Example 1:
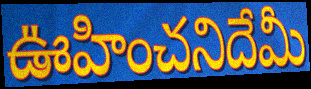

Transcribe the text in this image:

ఊహించనిదేమీ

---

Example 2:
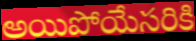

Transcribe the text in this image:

అయిపోయేసరికి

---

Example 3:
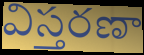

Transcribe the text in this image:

విస్తరణా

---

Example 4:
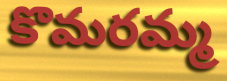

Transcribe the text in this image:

కొమరమ్మ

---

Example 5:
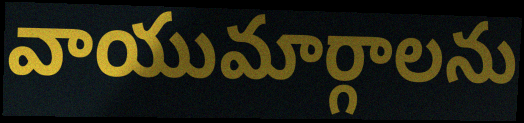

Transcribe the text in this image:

వాయుమార్గాలను